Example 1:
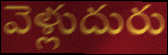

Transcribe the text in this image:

వెళ్లుదురు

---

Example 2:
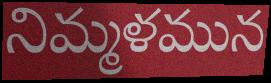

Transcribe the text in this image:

నిమ్మళమున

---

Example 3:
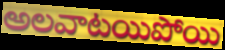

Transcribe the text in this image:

అలవాటయిపోయి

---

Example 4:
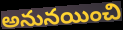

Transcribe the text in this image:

అనునయించి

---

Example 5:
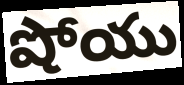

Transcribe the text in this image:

షోయు